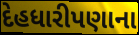
દેહધારીપણાના